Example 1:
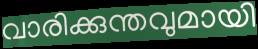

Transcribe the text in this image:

വാരിക്കുന്തവുമായി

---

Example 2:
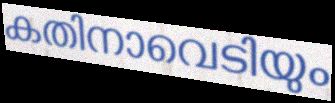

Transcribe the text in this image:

കതിനാവെടിയും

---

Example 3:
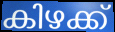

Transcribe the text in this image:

കിഴക്ക്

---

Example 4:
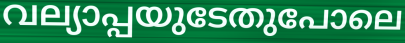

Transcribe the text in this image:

വല്യാപ്പയുടേതുപോലെ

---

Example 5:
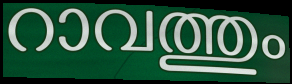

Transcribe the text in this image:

റാവത്തും